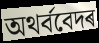
অথৰ্ববেদৰ